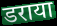
डराया